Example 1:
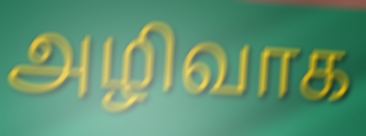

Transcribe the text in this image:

அழிவாக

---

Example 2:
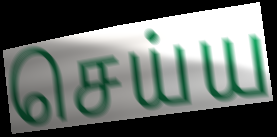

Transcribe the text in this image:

செய்ய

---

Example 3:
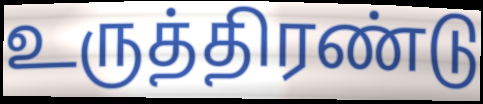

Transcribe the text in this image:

உருத்திரண்டு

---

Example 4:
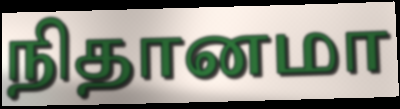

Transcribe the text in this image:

நிதானமா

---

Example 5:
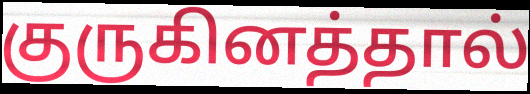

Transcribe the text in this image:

குருகினத்தால்